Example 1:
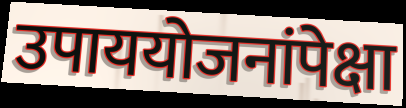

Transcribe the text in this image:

उपाययोजनांपेक्षा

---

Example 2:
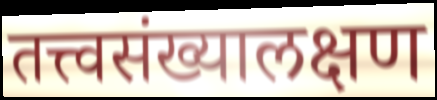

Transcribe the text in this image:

तत्त्वसंख्यालक्षण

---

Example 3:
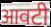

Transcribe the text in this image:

आवटी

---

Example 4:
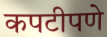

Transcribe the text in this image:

कपटीपणे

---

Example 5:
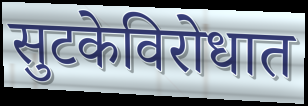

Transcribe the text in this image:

सुटकेविरोधात